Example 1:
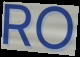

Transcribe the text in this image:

RO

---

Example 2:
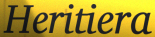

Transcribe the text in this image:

Heritiera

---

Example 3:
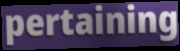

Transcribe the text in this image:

pertaining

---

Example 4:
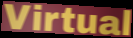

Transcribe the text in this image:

Virtual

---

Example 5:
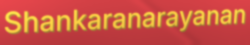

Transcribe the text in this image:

Shankaranarayanan